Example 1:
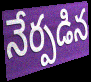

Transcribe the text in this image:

నేర్పడిన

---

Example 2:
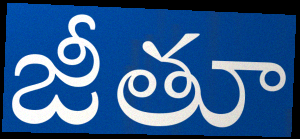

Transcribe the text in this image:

జీతూ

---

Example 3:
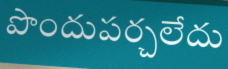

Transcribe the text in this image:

పొందుపర్చలేదు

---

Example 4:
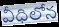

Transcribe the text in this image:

వీధిలోన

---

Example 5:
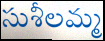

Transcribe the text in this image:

సుశీలమ్మ